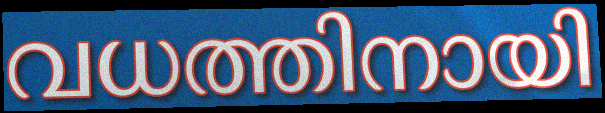
വധത്തിനായി